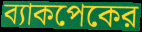
ব্যাকপেকের